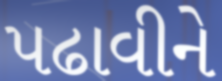
પઢાવીને